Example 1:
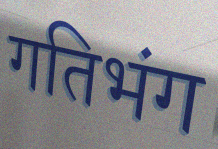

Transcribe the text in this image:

गतिभंग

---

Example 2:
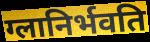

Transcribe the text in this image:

ग्लानिर्भवति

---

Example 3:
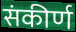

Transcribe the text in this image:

संकीर्ण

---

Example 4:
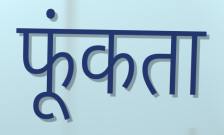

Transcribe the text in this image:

फूंकता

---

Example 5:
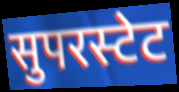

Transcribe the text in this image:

सुपरस्टेट